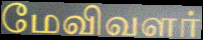
மேவிவளர்